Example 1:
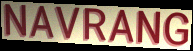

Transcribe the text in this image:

NAVRANG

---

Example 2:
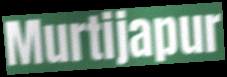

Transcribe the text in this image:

Murtijapur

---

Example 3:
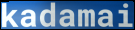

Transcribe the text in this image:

kadamai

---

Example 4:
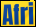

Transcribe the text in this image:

Afri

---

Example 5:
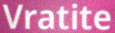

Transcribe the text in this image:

Vratite